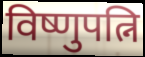
विष्णुपत्नि